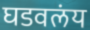
घडवलंय